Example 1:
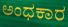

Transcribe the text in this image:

ಅಂಧಕಾರ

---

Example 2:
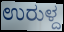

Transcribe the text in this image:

ಉರುಳ್ದ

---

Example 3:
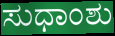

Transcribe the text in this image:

ಸುಧಾಂಶು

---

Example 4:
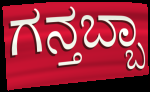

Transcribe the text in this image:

ಗನ್ತಬ್ಬಾ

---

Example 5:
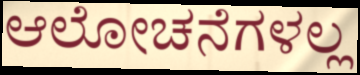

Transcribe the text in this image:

ಆಲೋಚನೆಗಳಲ್ಲ